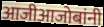
आजीआजोबांनी